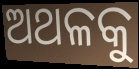
ଅଥଳକୁ